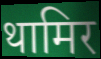
थामिर